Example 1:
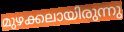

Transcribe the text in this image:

മുഴക്കലായിരുന്നു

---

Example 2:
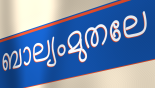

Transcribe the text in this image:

ബാല്യംമുതലേ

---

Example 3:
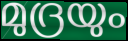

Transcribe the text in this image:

മുദ്രയും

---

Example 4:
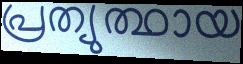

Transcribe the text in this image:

പ്രത്യുത്ഥായ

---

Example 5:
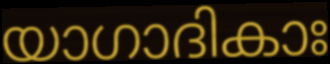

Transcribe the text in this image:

യാഗാദികാഃ